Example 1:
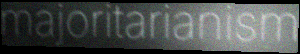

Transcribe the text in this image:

majoritarianism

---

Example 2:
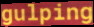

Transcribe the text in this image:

gulping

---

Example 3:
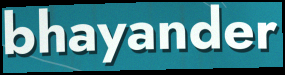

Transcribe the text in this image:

bhayander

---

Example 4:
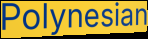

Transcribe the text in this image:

Polynesian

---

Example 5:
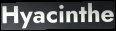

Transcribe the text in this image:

Hyacinthe